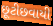
છૂટીછવાયી